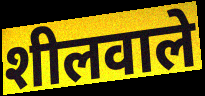
शीलवाले